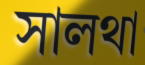
সালথা